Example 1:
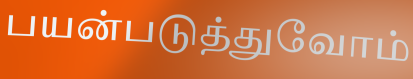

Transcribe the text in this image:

பயன்படுத்துவோம்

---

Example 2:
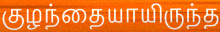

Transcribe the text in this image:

குழந்தையாயிருந்த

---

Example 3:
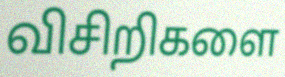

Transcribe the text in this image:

விசிறிகளை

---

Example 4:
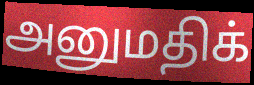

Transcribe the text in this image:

அனுமதிக்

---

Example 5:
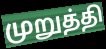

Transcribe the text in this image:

முறுத்தி